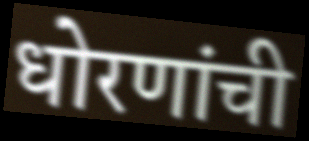
धोरणांची